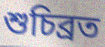
শুচিব্রত